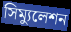
সিম্যুলেশন